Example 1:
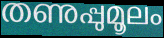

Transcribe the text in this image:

തണുപ്പുമൂലം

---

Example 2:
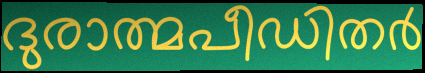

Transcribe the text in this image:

ദുരാത്മപീഡിതർ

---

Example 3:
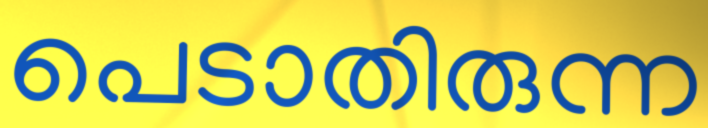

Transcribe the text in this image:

പെടാതിരുന്ന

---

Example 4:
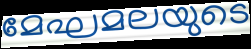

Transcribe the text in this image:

മേഘമലയുടെ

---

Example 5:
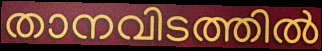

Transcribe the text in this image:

താനവിടത്തിൽ